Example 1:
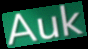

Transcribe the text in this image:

Auk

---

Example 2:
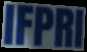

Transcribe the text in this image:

IFPRI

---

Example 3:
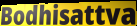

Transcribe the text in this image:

Bodhisattva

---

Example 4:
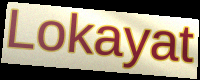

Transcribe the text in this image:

Lokayat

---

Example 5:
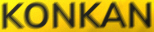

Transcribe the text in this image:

KONKAN